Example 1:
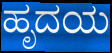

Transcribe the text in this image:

ಹೃದಯ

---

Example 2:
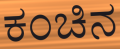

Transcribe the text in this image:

ಕಂಚಿನ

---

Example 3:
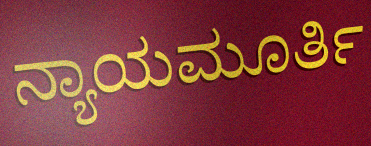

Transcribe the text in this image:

ನ್ಯಾಯಮೂರ್ತಿ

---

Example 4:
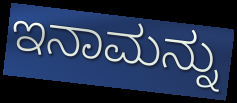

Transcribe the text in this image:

ಇನಾಮನ್ನು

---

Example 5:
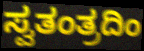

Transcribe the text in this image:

ಸ್ವತಂತ್ರದಿಂ